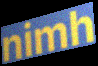
nimh